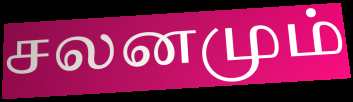
சலனமும்